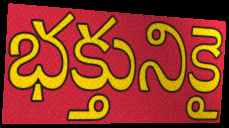
భక్తునికై